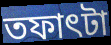
তফাৎটা